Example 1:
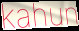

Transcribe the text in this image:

kahun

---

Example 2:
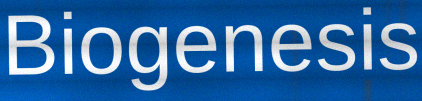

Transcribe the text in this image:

Biogenesis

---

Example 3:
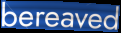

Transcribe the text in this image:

bereaved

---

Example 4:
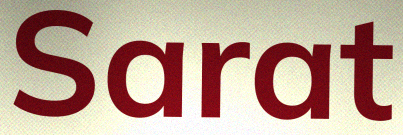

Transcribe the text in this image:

Sarat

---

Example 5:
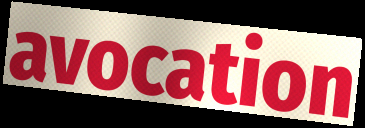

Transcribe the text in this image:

avocation